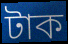
টাক